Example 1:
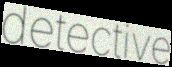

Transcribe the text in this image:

detective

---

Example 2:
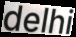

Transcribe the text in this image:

delhi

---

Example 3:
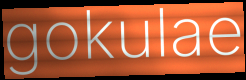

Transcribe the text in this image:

gokulae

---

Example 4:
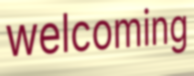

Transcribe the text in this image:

welcoming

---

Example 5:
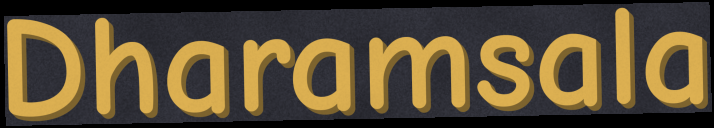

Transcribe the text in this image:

Dharamsala